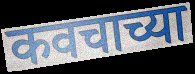
कवचाच्या